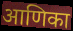
आणिका